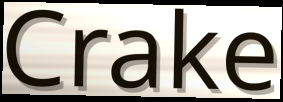
Crake